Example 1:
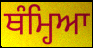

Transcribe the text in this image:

ਥੰਮ੍ਹਿਆ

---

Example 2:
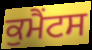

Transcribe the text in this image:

ਕੁਮੈਂਟਸ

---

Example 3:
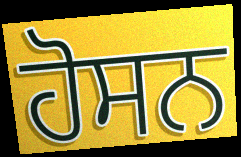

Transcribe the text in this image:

ਹੋਸਨ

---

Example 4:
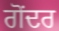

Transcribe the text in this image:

ਗੋਂਦਰ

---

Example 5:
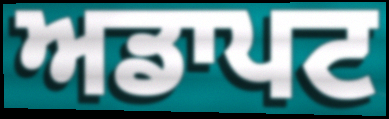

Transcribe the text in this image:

ਅਡਾਪਟ